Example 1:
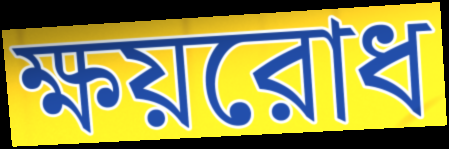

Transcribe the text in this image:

ক্ষয়রোধ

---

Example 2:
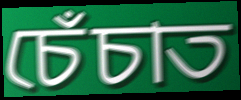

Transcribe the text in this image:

চেঁচাত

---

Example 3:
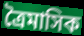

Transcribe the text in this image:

ত্রৈমাসিক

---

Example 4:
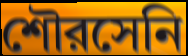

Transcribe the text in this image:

শৌরসেনি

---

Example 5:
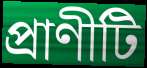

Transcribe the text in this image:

প্রাণীটি